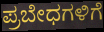
ಪ್ರಬೇಧಗಳಿಗೆ